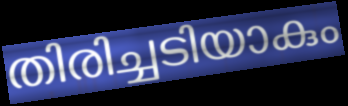
തിരിച്ചടിയാകും